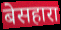
बेसहारा